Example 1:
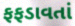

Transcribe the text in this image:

ફફડાવતાં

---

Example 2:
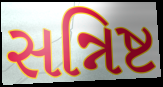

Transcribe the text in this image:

સન્નિષ્ટ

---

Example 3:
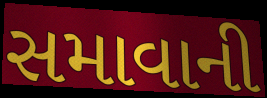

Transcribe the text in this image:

સમાવાની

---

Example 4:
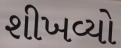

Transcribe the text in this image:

શીખવ્યો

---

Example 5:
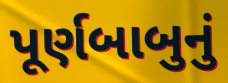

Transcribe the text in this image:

પૂર્ણબાબુનું